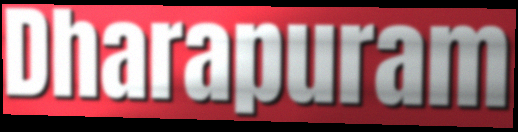
Dharapuram